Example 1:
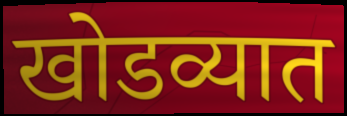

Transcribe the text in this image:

खोडव्यात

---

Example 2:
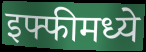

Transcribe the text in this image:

इफ्फीमध्ये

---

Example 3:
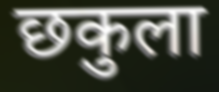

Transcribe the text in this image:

छकुला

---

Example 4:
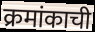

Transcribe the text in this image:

क्रमांकाची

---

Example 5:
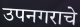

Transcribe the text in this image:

उपनगराचे